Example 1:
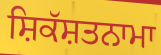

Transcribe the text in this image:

ਸ਼ਿਕੱਸ਼ਤਨਾਮਾ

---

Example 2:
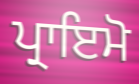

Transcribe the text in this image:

ਪ੍ਰਾਇਮੋ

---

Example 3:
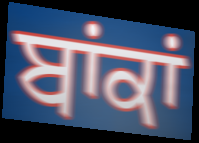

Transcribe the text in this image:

ਬਾਂਕਾਂ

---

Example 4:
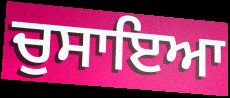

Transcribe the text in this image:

ਚੁਸਾਇਆ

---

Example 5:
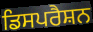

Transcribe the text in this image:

ਡਿਸਪਰੈਸ਼ਨ